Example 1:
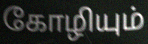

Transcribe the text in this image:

கோழியும்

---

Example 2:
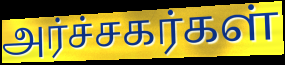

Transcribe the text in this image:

அர்ச்சகர்கள்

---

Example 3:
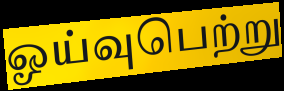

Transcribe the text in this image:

ஓய்வுபெற்று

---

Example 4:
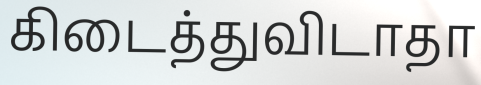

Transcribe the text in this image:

கிடைத்துவிடாதா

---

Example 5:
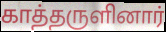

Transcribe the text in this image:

காத்தருளினார்